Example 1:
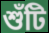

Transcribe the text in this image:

শুঁটি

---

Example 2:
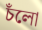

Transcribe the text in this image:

চঁলো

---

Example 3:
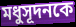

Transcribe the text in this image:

মধুসূদনকে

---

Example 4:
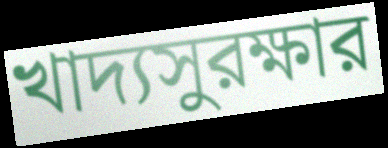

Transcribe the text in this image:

খাদ্যসুরক্ষার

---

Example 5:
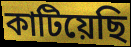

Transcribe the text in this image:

কাটিয়েছি